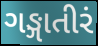
ગઙ્ગાતીરં